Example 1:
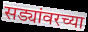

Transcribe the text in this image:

सड्यांवरच्या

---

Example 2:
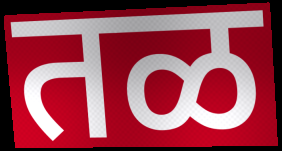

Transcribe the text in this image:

तळ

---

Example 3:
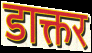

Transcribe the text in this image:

डाक्तर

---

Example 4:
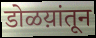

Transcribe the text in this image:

डोळय़ांतून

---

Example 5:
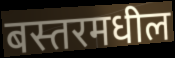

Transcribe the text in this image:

बस्तरमधील